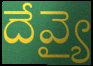
దేవ్యై